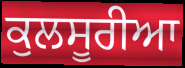
ਕੁਲਸੂਰੀਆ